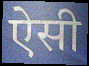
ऐसी